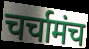
चर्चामंच